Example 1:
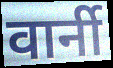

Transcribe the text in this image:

वार्नी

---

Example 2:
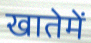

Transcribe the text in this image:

खातेमें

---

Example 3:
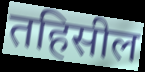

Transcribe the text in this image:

तहिसील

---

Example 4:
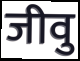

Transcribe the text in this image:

जीवु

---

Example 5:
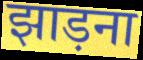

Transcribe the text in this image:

झाड़ना